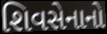
શિવસેનાનો